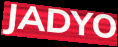
JADYO